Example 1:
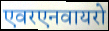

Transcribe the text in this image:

एवरएनवायरो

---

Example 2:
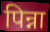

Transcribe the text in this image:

पिन्ना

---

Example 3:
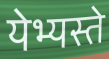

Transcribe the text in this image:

येभ्यस्ते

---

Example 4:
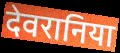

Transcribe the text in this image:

देवरानिया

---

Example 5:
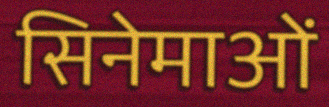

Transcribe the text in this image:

सिनेमाओं